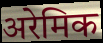
अरेमिक